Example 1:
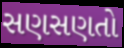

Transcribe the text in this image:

સણસણતો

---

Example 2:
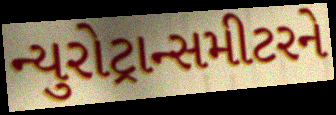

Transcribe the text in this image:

ન્યુરોટ્રાન્સમીટરને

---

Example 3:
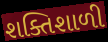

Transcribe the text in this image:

શક્તિશાળી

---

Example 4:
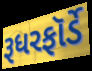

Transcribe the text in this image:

રૂધરફૉર્ડે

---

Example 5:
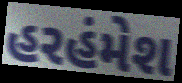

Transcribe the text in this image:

હરહંમેશ